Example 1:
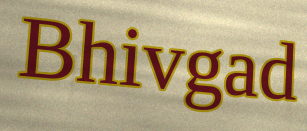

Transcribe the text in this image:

Bhivgad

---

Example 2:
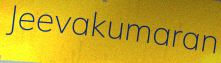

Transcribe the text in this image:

Jeevakumaran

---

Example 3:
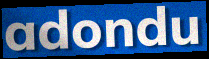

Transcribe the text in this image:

adondu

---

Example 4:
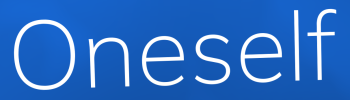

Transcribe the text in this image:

Oneself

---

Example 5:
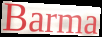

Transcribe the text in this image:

Barma